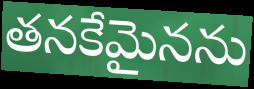
తనకేమైనను